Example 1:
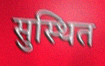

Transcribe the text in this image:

सुस्थित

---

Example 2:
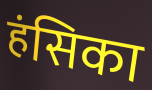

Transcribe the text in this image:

हंसिका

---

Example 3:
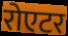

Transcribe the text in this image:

रोएटर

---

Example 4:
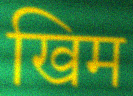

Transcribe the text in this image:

खिम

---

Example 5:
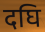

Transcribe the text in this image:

दघि